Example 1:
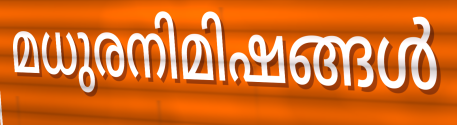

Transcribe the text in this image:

മധുരനിമിഷങ്ങൾ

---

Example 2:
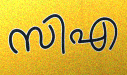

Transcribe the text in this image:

സിഎ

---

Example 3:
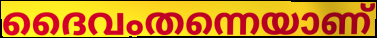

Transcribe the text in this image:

ദൈവംതന്നെയാണ്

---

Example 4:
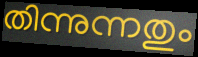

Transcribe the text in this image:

തിന്നുന്നതും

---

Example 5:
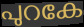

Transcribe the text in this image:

പുറകേ